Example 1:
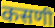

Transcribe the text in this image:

कसणी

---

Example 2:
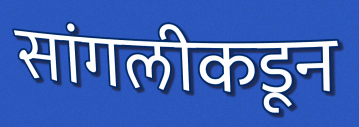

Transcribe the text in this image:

सांगलीकडून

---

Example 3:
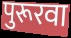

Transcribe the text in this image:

पुरूरवा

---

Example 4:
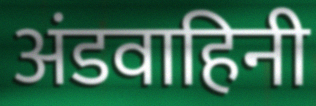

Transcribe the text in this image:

अंडवाहिनी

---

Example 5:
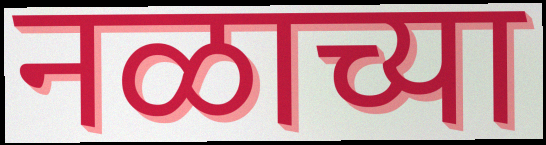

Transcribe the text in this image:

नळाच्या